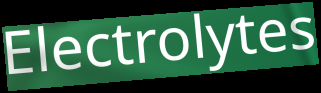
Electrolytes